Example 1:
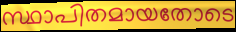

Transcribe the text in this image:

സ്ഥാപിതമായതോടെ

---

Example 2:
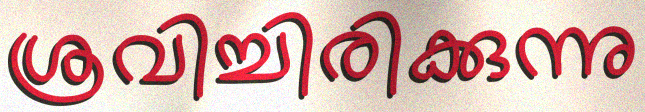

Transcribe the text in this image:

ശ്രവിച്ചിരിക്കുന്നു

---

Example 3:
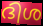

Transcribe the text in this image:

ദിശ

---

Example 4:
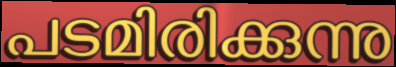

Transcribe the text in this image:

പടമിരിക്കുന്നു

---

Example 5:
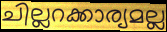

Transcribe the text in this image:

ചില്ലറക്കാര്യമല്ല